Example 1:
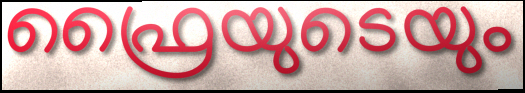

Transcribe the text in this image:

ഫ്രൈയുടെയും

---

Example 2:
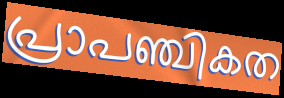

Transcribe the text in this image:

പ്രാപഞ്ചികത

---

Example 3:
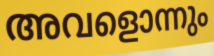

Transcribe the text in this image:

അവളൊന്നും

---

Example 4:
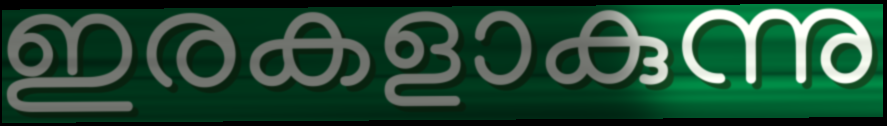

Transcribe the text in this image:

ഇരകളാകുന്നു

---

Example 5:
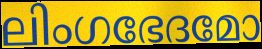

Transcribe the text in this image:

ലിംഗഭേദമോ